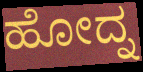
ಹೋದ್ನ